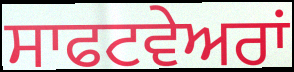
ਸਾਫਟਵੇਅਰਾਂ